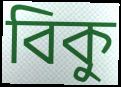
বিকু